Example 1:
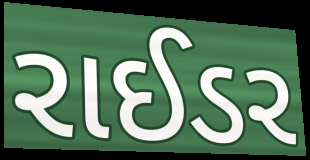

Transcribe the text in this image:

રાઈડર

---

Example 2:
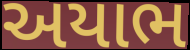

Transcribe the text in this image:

અયાભ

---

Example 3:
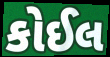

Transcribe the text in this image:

કોઈલ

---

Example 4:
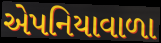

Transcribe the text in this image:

એપનિયાવાળા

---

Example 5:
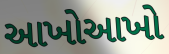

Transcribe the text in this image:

આખોઆખો